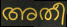
അതീ